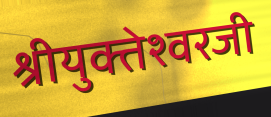
श्रीयुक्तेश्वरजी